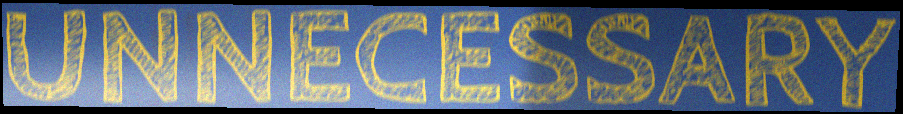
UNNECESSARY